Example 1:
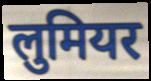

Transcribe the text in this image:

लुमियर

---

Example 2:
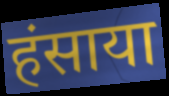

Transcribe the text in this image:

हंसाया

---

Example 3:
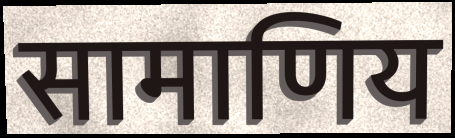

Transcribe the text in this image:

सामाणिय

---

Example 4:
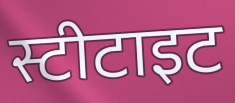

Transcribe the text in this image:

स्टीटाइट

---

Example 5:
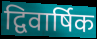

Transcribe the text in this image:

द्विवार्षिक